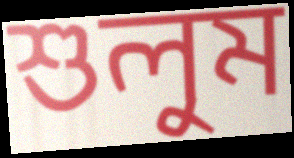
শুলুম